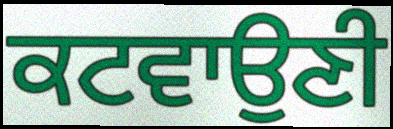
ਕਟਵਾਉਣੀ